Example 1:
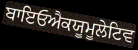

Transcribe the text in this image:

ਬਾਇਓਐਕਯੂਮੂਲੇਟਿਵ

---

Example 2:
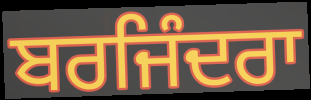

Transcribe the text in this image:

ਬਰਜਿੰਦਰਾ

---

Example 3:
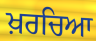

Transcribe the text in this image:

ਖ਼ਰਚਿਆ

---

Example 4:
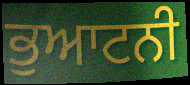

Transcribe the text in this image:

ਭੁਆਟਨੀ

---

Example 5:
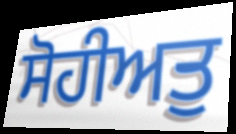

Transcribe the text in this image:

ਸੋਹੀਅਤੁ